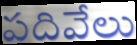
పదివేలు